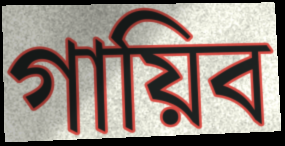
গায়িব